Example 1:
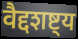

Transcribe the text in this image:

वैद्दशष्ट्य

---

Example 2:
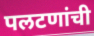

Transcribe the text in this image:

पलटणांची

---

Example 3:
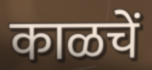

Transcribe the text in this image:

काळचें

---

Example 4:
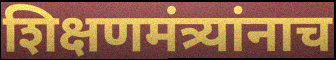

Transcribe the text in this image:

शिक्षणमंत्र्यांनाच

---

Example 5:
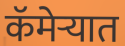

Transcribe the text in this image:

कॅमेऱ्यात